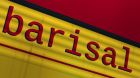
barisal